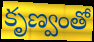
కృణ్వంతో